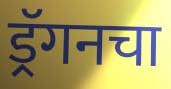
ड्रॅगनचा